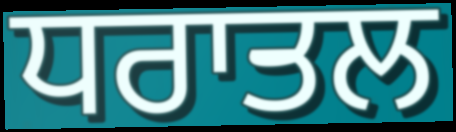
ਧਰਾਤਲ